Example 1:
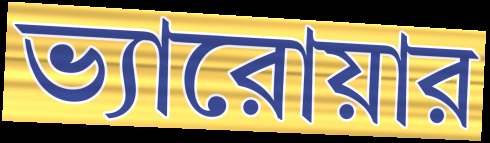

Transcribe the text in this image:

ভ্যারোয়ার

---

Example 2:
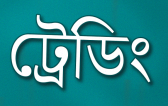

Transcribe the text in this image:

ট্রেডিং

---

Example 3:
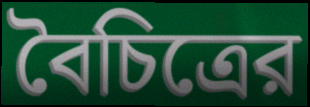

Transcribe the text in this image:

বৈচিত্রের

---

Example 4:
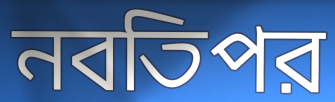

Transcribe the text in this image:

নবতিপর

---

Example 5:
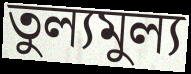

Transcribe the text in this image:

তুল্যমুল্য